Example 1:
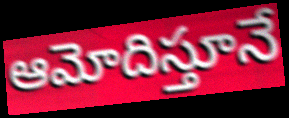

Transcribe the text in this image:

ఆమోదిస్తూనే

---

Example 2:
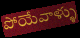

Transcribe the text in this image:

పోయేవాళ్ళు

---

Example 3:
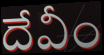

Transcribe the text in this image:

దేవీం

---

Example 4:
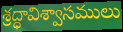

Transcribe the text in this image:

శ్రద్ధావిశ్వాసములు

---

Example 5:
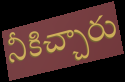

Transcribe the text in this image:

నీకిచ్చారు